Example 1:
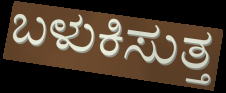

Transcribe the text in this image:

ಬಳುಕಿಸುತ್ತ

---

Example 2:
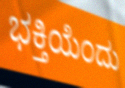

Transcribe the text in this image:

ಭಕ್ತಿಯೆಂದು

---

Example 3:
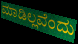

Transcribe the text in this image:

ಮಾಡಿಲ್ಲವೆಂದು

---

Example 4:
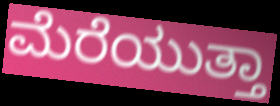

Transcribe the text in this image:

ಮೆರೆಯುತ್ತಾ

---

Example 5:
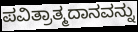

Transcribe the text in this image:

ಪವಿತ್ರಾತ್ಮದಾನವನ್ನು